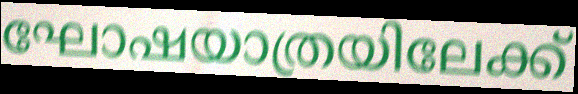
ഘോഷയാത്രയിലേക്ക്